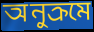
অনুক্ৰমে